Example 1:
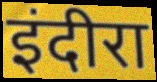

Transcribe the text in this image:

इंदीरा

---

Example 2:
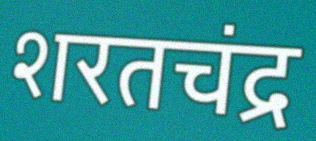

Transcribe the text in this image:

शरतचंद्र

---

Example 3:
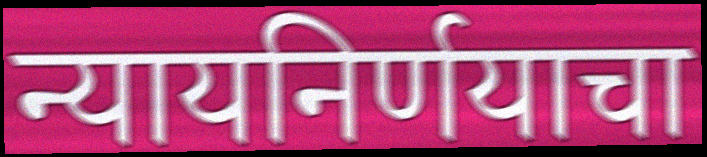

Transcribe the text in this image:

न्यायनिर्णयाचा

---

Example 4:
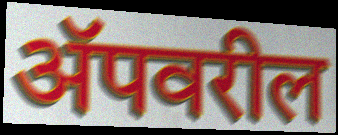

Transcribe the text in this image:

ॲपवरील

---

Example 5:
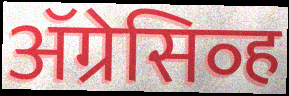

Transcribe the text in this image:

ॲग्रेसिव्ह